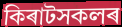
কিৰাটসকলৰ